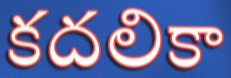
కదలికా